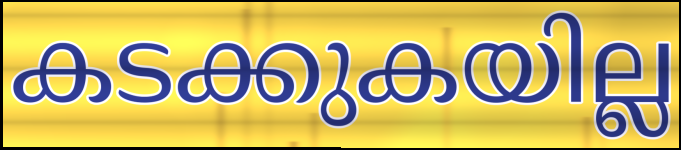
കടക്കുകയില്ല